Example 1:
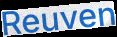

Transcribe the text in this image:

Reuven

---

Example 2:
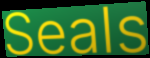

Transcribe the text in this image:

Seals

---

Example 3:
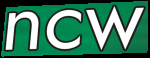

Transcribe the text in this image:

ncw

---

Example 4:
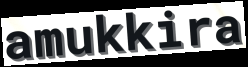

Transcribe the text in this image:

amukkira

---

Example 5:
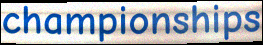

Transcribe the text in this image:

championships